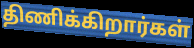
திணிக்கிறார்கள்